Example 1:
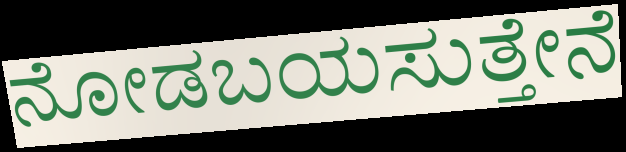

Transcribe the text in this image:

ನೋಡಬಯಸುತ್ತೇನೆ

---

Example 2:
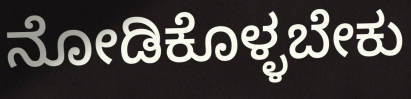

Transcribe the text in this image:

ನೋಡಿಕೊಳ್ಳಬೇಕು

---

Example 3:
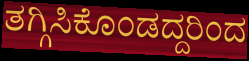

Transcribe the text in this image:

ತಗ್ಗಿಸಿಕೊಂಡದ್ದರಿಂದ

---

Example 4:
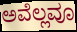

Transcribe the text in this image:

ಅವೆಲ್ಲವೂ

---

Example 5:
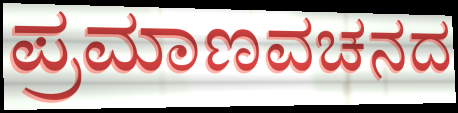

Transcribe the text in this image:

ಪ್ರಮಾಣವಚನದ